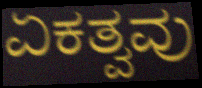
ಏಕತ್ವವು